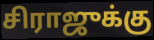
சிராஜுக்கு